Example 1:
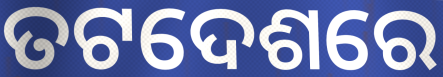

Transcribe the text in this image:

ତଟଦେଶରେ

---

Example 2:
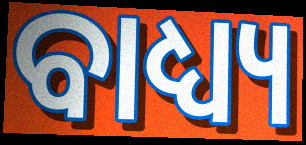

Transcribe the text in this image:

ବାଧ୍ୟ୍ୟ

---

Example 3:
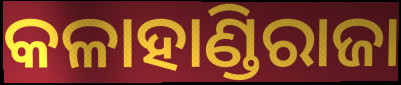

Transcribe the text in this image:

କଳାହାଣ୍ଡିରାଜା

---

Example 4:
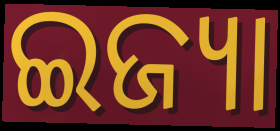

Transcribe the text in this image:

ଇଜ୍ୟା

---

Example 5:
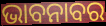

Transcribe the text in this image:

ଭାବନାବର